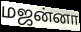
மஜன்னா